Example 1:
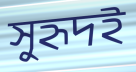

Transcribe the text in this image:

সুহৃদই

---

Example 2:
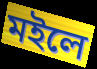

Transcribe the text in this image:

মইলে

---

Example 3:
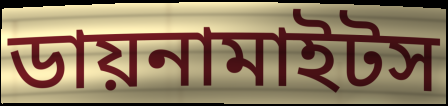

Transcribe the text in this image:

ডায়নামাইটস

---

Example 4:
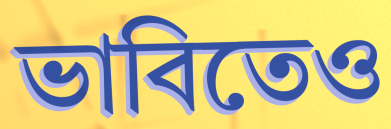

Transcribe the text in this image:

ভাবিতেও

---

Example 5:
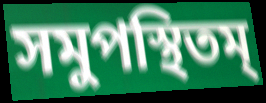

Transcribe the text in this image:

সমুপস্থিতম্